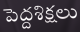
పెద్దశిక్షలు